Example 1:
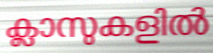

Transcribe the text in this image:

ക്ലാസുകളിൽ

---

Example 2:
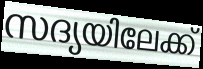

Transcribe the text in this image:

സദ്യയിലേക്ക്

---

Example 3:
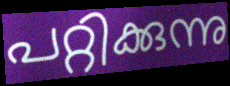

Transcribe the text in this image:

പറ്റിക്കുന്നു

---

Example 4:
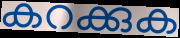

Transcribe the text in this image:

കറക്കുക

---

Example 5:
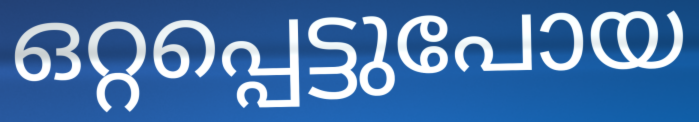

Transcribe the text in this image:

ഒറ്റപ്പെട്ടുപോയ